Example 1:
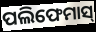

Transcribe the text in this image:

ପଲିଫେମାସ୍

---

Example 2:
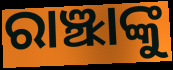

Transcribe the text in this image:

ରାଞ୍ଝାଙ୍କୁ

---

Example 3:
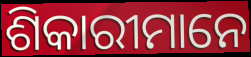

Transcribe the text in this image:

ଶିକାରୀମାନେ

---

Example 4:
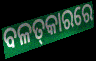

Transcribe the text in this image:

ବଳତ୍‌କାରରେ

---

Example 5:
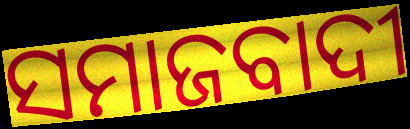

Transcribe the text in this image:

ସମାଜବାଦୀ